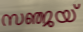
സഞ്ജയ്